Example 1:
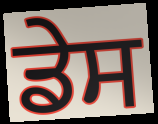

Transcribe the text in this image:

ਡੇਸ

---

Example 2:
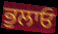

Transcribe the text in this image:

ਭੁਲਾਓ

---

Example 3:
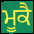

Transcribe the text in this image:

ਮੂਕੈ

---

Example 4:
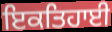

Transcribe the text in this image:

ਇਕਤਿਹਾਈ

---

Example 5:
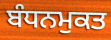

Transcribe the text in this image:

ਬੰਧਨਮੁਕਤ